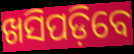
ଖସିପଡ଼ିବେ